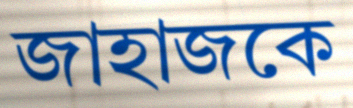
জাহাজকে